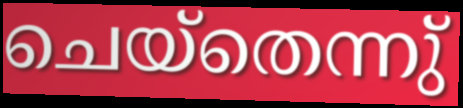
ചെയ്തെന്നു്